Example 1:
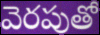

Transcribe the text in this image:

వెరపుతో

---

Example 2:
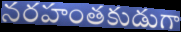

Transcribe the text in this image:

నరహంతకుడుగా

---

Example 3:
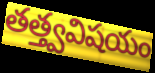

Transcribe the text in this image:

తత్త్వవిషయం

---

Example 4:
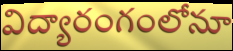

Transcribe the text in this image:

విద్యారంగంలోనూ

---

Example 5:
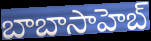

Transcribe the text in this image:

బాబాసాహెబ్